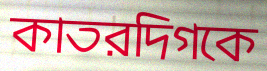
কাতরদিগকে